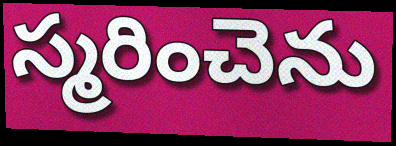
స్మరించెను